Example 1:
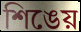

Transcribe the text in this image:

শিঙেয়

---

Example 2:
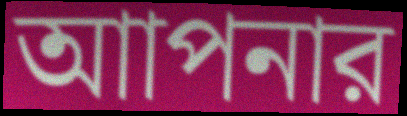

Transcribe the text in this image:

আাপনার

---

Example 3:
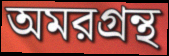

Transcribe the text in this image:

অমরগ্রন্থ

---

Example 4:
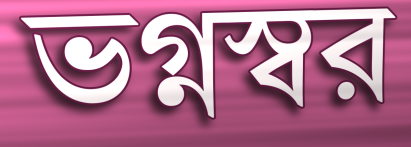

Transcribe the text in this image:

ভগ্নস্বর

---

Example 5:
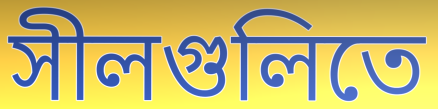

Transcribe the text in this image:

সীলগুলিতে